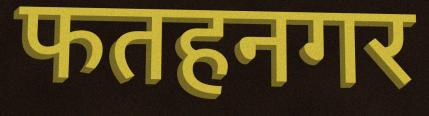
फतहनगर